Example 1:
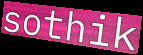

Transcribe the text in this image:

sothik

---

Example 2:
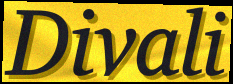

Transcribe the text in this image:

Divali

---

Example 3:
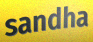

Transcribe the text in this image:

sandha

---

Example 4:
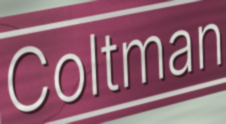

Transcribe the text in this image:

Coltman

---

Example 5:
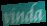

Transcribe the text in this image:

vinda